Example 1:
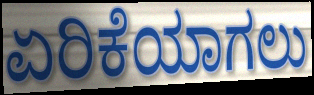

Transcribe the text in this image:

ಏರಿಕೆಯಾಗಲು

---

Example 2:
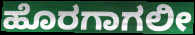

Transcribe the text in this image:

ಹೊರಗಾಗಲೀ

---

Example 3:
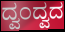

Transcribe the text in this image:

ದ್ವಂದ್ವದ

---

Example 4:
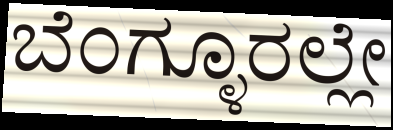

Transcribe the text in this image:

ಬೆಂಗ್ಳೂರಲ್ಲೇ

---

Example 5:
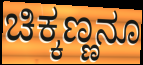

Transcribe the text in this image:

ಚಿಕ್ಕಣ್ಣನೂ